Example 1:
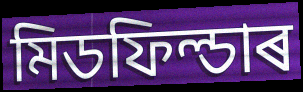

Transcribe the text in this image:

মিডফিল্ডাৰ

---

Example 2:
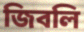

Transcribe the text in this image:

জিবলি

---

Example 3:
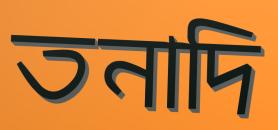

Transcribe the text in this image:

তনাদি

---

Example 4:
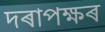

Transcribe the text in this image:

দৰাপক্ষৰ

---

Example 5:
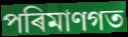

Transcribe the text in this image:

পৰিমাণগত